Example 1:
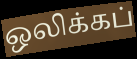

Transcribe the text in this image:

ஒலிக்கப்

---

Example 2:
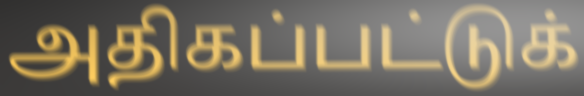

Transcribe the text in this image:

அதிகப்பட்டுக்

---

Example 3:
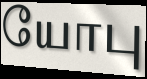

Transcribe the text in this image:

யோபு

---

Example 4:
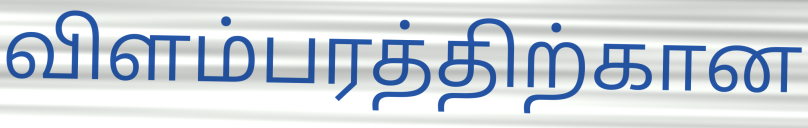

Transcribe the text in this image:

விளம்பரத்திற்கான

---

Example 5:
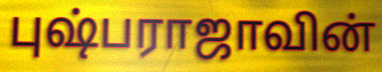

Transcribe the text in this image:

புஷ்பராஜாவின்